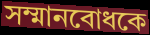
সম্মানবোধকে